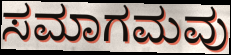
ಸಮಾಗಮವು